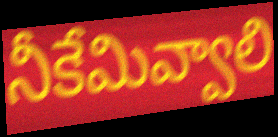
నీకేమివ్వాలి